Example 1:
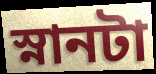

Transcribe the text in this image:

স্নানটা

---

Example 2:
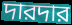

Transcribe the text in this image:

দারদার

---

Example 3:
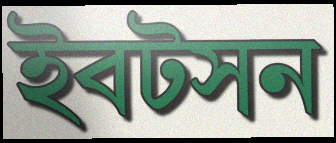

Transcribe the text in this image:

ইবটসন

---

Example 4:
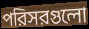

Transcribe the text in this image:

পরিসরগুলো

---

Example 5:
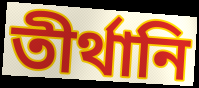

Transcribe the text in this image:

তীর্থানি